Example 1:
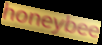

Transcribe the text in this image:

honeybee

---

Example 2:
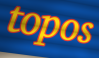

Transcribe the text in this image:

topos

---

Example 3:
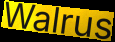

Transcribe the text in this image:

Walrus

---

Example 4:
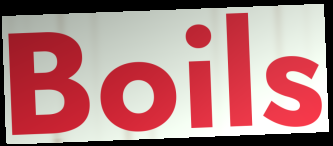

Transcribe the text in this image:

Boils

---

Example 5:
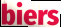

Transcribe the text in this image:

biers